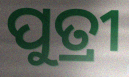
ପୁତ୍ରୀ